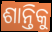
ଶାନ୍ତିକୁ